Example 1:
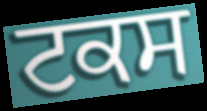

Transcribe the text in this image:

ਟਕਸ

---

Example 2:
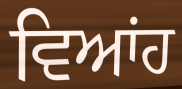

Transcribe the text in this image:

ਵਿਆਂਹ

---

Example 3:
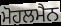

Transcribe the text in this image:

ਮੋਹਲਮੈਨ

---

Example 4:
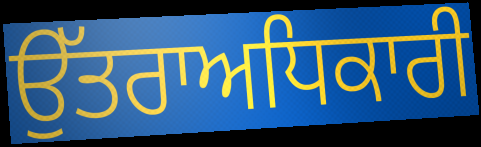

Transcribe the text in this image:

ਉੱਤਰਾਅਧਿਕਾਰੀ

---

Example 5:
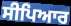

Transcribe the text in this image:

ਸੀਪਿਆਰ